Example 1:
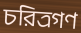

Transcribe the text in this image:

চরিত্রগণ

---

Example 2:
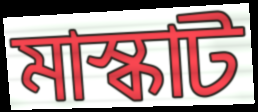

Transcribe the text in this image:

মাস্কাট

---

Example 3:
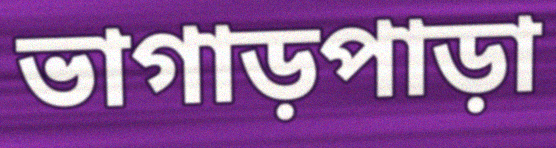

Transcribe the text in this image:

ভাগাড়পাড়া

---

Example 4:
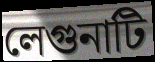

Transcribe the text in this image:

লেগুনাটি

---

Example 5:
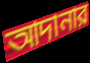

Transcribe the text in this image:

আদানার